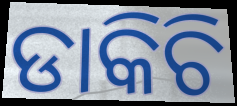
ଡାକିଚି